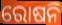
ରୋଷନି